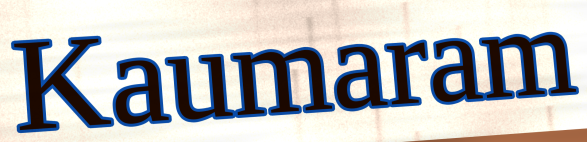
Kaumaram